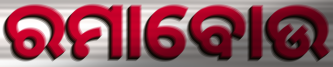
ରମାବୋଉ